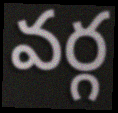
వర్గ